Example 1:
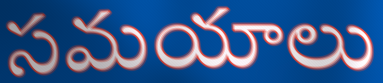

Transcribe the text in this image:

సమయాలు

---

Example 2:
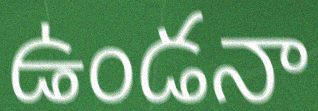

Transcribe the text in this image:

ఉండనా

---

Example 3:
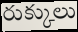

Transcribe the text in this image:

రుక్కులు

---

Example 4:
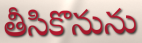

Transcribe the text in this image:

తీసికొనును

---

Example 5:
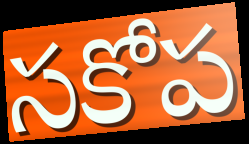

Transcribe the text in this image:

సకోప